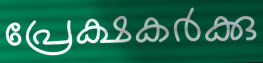
പ്രേക്ഷകർക്കു